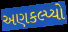
અણકલ્પ્યો